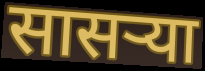
सासर्‍या